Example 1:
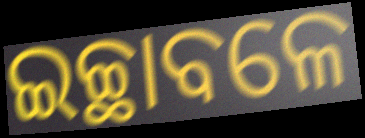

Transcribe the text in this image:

ଇଚ୍ଛାବଳେ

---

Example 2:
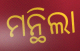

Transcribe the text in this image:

ମନ୍ଥିଲା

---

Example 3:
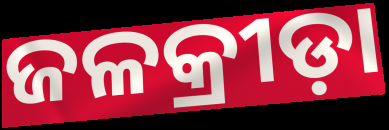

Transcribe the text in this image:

ଜଳକ୍ରୀଡ଼ା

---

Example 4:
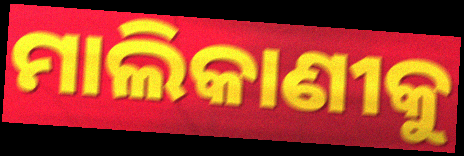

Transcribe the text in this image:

ମାଲିକାଣୀକୁ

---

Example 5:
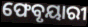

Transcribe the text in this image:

ଫେବୃୟାରୀ